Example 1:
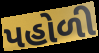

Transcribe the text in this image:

પહોળી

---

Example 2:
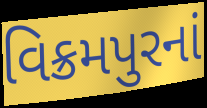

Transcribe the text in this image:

વિક્રમપુરનાં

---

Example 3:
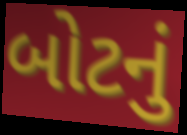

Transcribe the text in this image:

બોટનું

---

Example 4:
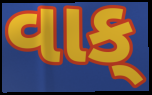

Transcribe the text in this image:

વાક્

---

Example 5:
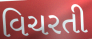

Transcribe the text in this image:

વિચરતી